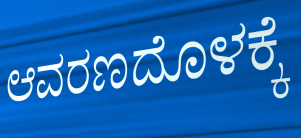
ಆವರಣದೊಳಕ್ಕೆ